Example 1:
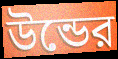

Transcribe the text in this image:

উন্ডের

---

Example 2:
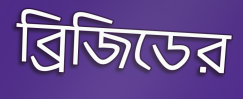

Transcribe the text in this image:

ব্রিজিডের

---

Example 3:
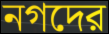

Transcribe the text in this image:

নগদের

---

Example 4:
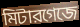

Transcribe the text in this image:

মিটারগেজে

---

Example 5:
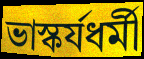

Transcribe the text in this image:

ভাস্কর্যধর্মী